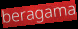
beragama